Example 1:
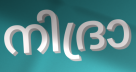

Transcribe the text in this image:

നിദ്രാ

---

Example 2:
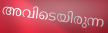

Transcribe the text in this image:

അവിടെയിരുന്ന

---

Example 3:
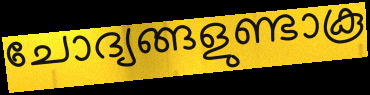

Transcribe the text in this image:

ചോദ്യങ്ങളുണ്ടാകൂ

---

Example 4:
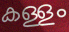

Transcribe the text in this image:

കള്ളം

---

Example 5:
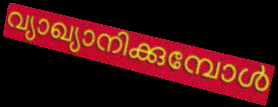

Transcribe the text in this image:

വ്യാഖ്യാനിക്കുമ്പോൾ